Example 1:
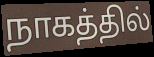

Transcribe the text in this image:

நாகத்தில்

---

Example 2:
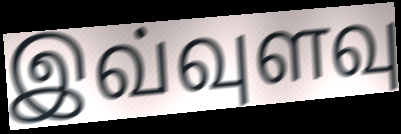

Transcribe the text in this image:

இவ்வுளவு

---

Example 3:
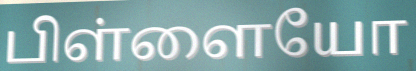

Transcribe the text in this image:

பிள்ளையோ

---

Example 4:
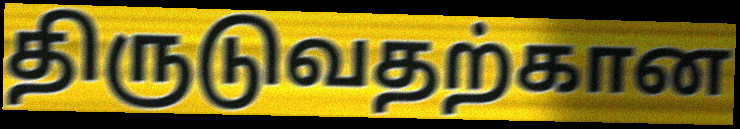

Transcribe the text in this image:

திருடுவதற்கான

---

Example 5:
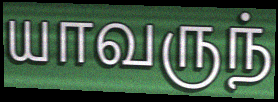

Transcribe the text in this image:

யாவருந்